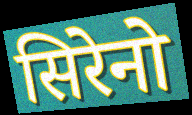
सिरेनो